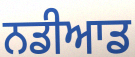
ਨਡੀਆਡ